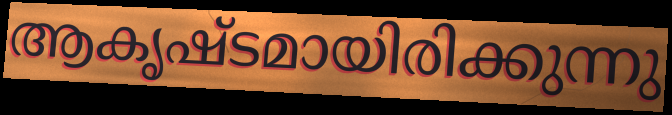
ആകൃഷ്ടമായിരിക്കുന്നു